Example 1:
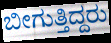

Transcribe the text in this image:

ಬೀಗುತ್ತಿದ್ದರು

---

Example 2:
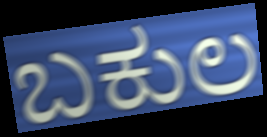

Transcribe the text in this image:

ಬಕುಲ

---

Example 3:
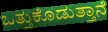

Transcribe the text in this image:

ಒತ್ತುಕೊಡುತ್ತಾನೆ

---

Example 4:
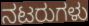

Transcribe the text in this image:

ನಟರುಗಳು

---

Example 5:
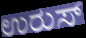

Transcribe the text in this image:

ಉರುಸ್